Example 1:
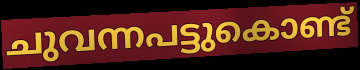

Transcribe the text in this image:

ചുവന്നപട്ടുകൊണ്ട്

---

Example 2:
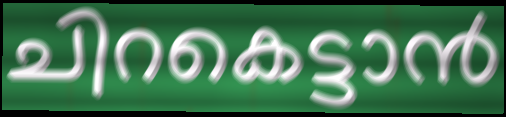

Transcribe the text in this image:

ചിറകെട്ടാൻ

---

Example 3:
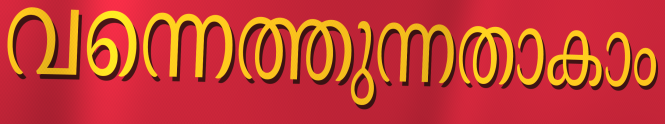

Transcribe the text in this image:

വന്നെത്തുന്നതാകാം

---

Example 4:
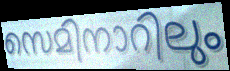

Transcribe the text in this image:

സെമിനാറിലും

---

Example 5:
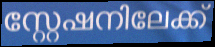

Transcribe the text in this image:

സ്റ്റേഷനിലേക്ക്